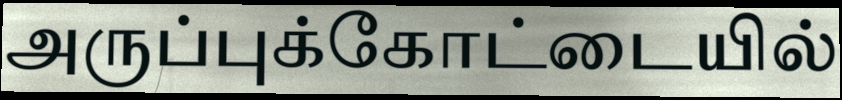
அருப்புக்கோட்டையில்